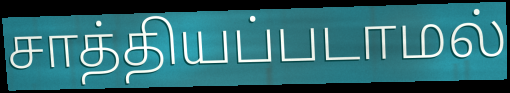
சாத்தியப்படாமல்